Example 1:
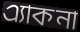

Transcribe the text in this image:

এ্যাকনা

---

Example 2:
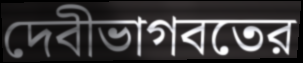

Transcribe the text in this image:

দেবীভাগবতের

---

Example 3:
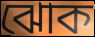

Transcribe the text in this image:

ঝোক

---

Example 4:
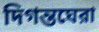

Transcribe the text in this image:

দিগন্তঘেরা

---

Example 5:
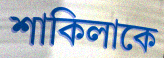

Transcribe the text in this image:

শাকিলাকে